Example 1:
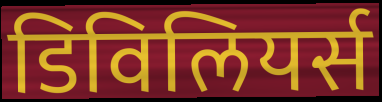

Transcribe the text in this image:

डिविलियर्स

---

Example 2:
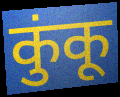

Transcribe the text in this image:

कुंकू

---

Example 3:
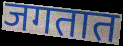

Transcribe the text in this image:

जगतात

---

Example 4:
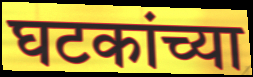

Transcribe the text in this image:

घटकांच्या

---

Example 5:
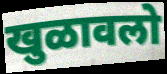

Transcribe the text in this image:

खुळावलो